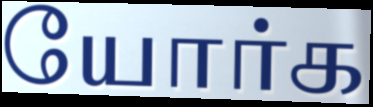
யோர்க